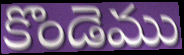
కొండెము